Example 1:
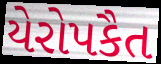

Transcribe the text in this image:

યેરોપકૈત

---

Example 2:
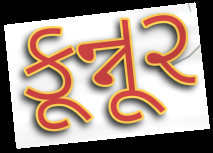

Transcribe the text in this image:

કૂન્નૂર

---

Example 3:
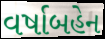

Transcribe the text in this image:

વર્ષાબહેન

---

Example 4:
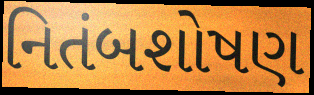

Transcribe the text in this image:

નિતંબશોષણ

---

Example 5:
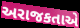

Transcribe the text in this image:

અરાજકતાએ